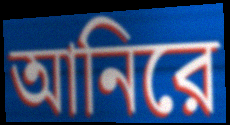
আনিরে